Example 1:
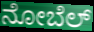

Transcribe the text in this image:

ನೋಬೆಲ್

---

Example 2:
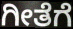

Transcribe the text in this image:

ಗೀತೆಗೆ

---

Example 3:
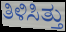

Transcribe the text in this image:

ತಿಳಿಸಿತ್ತು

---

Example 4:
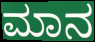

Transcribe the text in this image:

ಮಾನ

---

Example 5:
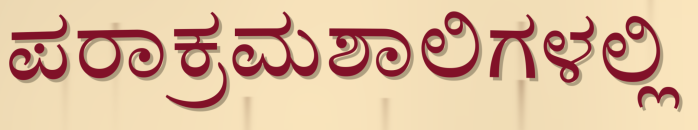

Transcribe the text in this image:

ಪರಾಕ್ರಮಶಾಲಿಗಳಲ್ಲಿ